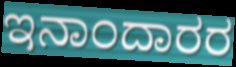
ಇನಾಂದಾರರ